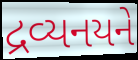
દ્રવ્યનયને